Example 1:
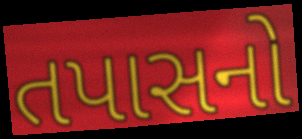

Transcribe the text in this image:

તપાસનો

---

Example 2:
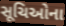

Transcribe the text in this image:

સૂચિઓના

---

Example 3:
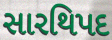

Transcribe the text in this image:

સારથિપદ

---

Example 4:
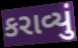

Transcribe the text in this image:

કરાવ્યું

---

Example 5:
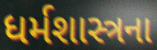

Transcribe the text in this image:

ધર્મશાસ્ત્રના